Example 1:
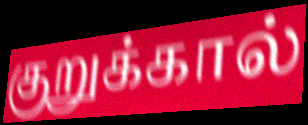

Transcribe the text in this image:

குறுக்கால்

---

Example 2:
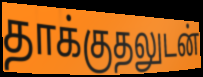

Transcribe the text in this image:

தாக்குதலுடன்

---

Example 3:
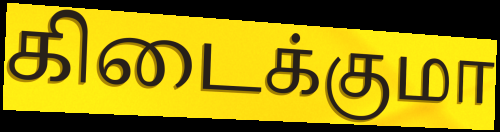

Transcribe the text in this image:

கிடைக்குமா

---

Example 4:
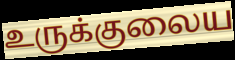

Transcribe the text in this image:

உருக்குலைய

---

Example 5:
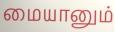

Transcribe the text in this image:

மையானும்